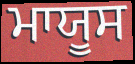
ਮਾਯੂਸ